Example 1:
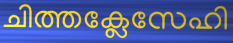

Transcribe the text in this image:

ചിത്തക്ലേസേഹി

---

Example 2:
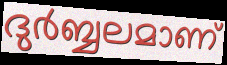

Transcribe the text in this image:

ദുർബ്ബലമാണ്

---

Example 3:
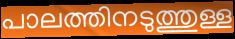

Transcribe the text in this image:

പാലത്തിനടുത്തുള്ള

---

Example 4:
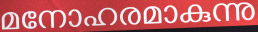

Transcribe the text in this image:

മനോഹരമാകുന്നു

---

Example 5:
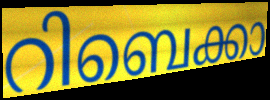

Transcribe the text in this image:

റിബെക്കാ